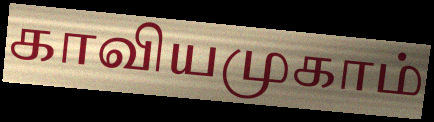
காவியமுகாம்